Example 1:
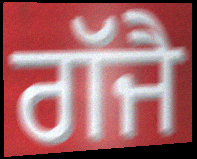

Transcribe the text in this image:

ਗੱਜੈ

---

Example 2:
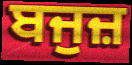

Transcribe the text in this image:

ਬਜੁਜ਼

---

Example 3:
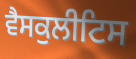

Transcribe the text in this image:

ਵੈਸਕੁਲੀਟਿਸ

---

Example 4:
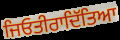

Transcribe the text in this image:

ਜਿਓਤੀਰਾਦਿੱਤਿਆ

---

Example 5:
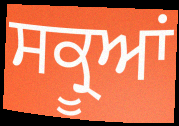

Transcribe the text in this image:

ਸਕ੍ਰੂਆਂ